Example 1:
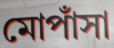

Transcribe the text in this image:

মোপাঁসা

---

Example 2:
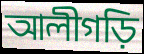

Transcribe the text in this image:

আলীগড়ি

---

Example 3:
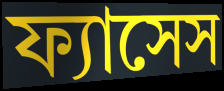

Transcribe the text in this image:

ফ্যাসেস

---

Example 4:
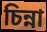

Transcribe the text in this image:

চিন্না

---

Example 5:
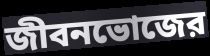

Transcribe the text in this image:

জীবনভোজের